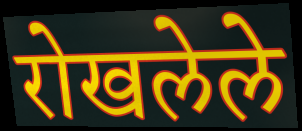
रोखलेले